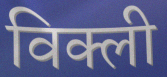
विक्ली